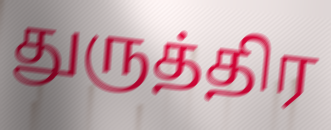
துருத்திர